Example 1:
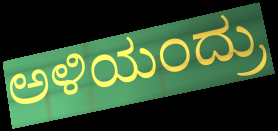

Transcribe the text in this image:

ಅಳಿಯಂದ್ರು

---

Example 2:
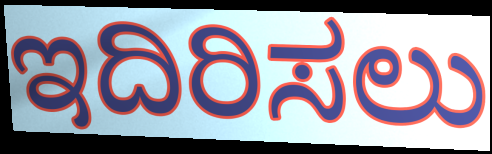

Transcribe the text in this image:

ಇದಿರಿಸಲು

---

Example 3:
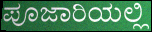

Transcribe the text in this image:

ಪೂಜಾರಿಯಲ್ಲಿ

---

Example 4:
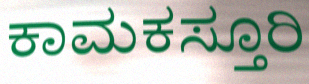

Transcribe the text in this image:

ಕಾಮಕಸ್ತೂರಿ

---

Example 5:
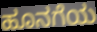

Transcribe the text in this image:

ಹೂನಗೆಯ